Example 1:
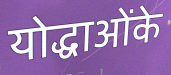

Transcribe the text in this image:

योद्धाओंके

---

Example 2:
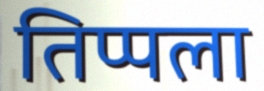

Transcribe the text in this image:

तिप्पला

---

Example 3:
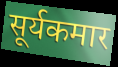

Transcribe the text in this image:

सूर्यकमार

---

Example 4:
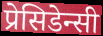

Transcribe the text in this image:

प्रेसिडेन्सी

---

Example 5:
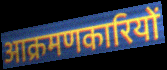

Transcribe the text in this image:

आक्रमणकारियों